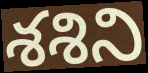
శశిని